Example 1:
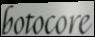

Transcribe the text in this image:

botocore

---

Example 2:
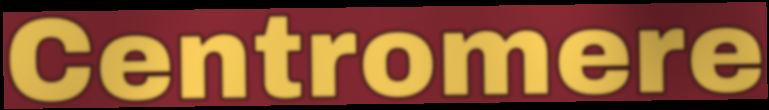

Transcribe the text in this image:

Centromere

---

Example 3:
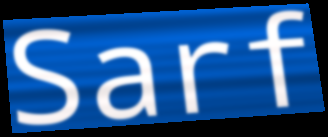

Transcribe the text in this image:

Sarf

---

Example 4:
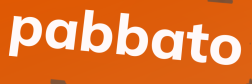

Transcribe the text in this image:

pabbato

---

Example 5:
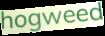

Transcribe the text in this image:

hogweed